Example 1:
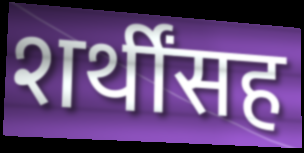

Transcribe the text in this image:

शर्थींसह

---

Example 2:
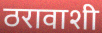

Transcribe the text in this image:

ठरावाशी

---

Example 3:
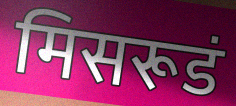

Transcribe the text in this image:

मिसरूडं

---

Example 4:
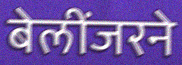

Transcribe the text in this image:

बेलींजरने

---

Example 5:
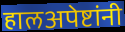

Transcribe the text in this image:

हालअपेष्टांनी